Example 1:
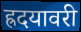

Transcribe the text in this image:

ह्रदयावरी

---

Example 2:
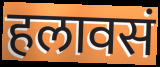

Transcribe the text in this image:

हलावसं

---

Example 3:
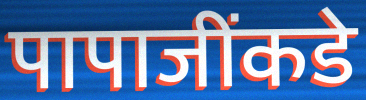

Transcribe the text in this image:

पापाजींकडे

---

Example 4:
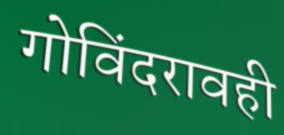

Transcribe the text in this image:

गोविंदरावही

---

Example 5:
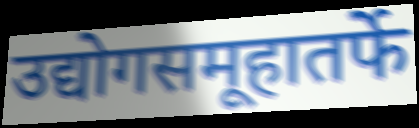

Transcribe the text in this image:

उद्योगसमूहातर्फे